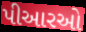
પીઆરઓ